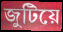
জুটিয়ে